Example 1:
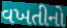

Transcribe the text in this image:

વખતીનો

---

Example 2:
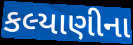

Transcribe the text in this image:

કલ્યાણીના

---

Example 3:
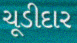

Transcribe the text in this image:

ચૂડીદાર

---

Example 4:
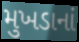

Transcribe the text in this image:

મુખડાનાં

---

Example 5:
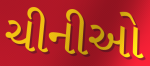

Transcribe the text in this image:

ચીનીઓ